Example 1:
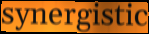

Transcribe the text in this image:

synergistic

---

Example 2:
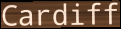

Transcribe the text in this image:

Cardiff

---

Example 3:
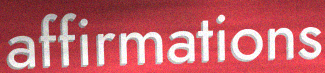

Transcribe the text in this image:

affirmations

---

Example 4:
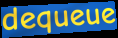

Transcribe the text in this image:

dequeue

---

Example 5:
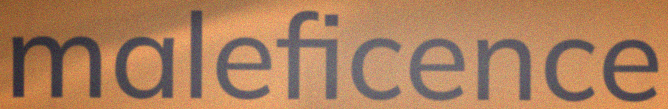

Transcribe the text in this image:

maleficence